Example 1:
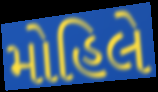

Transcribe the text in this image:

મોહિલે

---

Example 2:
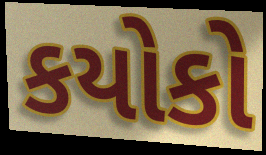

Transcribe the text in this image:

કયોકો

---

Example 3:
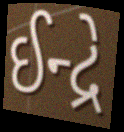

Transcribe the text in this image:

ઈન્દ્રે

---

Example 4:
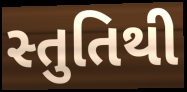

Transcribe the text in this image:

સ્તુતિથી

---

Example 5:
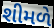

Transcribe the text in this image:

શીમળે